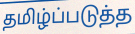
தமிழ்ப்படுத்த